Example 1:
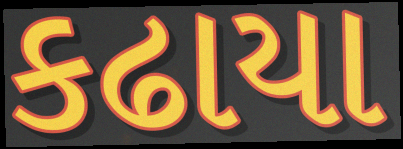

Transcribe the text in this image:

કઢાયા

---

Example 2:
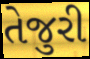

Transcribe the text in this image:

તેજુરી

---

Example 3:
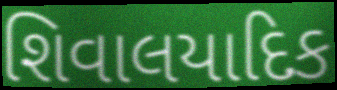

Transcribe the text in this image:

શિવાલયાદિક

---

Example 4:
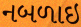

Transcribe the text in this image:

નબળાઇ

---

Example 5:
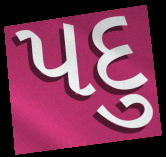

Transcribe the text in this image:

પદુ